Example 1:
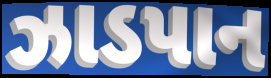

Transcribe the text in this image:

ઝાડપાન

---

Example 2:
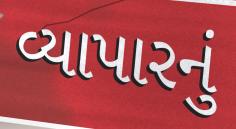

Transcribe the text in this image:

વ્યાપારનું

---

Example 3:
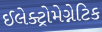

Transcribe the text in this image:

ઈલેક્ટ્રોમેગ્નેટિક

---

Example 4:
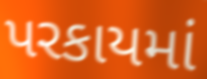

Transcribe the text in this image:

પરકાયમાં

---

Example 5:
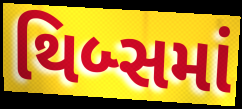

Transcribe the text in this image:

થિબ્સમાં